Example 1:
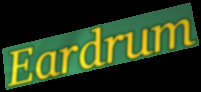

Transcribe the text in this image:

Eardrum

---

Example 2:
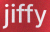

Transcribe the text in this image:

jiffy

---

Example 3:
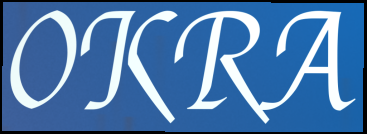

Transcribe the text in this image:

OKRA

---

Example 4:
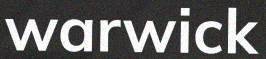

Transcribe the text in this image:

warwick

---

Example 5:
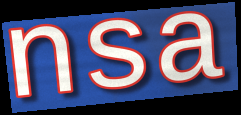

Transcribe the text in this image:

nsa